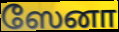
ஸேனா